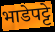
भाडेपट्टे